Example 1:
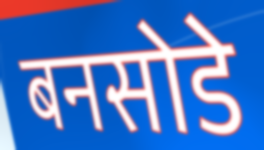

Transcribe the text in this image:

बनसोडे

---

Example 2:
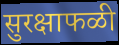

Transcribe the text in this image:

सुरक्षाफळी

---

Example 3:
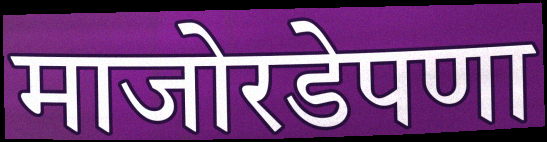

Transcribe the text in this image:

माजोरडेपणा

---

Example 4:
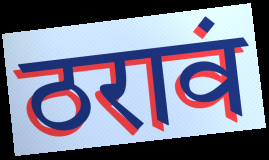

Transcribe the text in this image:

ठरावं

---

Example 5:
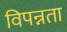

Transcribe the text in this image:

विपन्नता